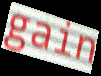
gain